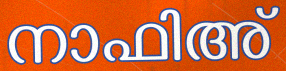
നാഫിഅ്